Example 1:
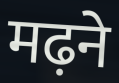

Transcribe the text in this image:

मढ़ने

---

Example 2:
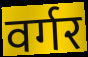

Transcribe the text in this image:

वर्गर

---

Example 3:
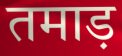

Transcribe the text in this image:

तमाड़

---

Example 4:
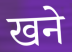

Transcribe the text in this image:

खने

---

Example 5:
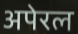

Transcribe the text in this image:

अपेरल